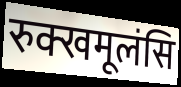
रुक्खमूलंसि